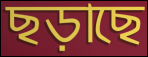
ছড়াছে